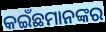
କଇଁଛମାନଙ୍କର